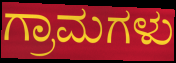
ಗ್ರಾಮಗಳು